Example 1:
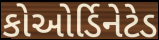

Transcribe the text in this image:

કોઓર્ડિનેટેડ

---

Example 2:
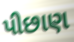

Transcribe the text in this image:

પીછાણ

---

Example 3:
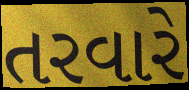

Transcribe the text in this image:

તરવારે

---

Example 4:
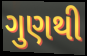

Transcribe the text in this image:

ગુણથી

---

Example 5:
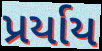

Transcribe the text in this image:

પ્રર્યાય